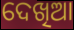
ଦେଖିଆ